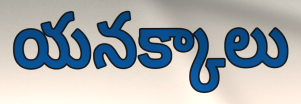
యనక్కాలు